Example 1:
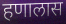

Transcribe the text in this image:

हणालास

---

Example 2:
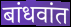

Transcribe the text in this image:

बांधवांत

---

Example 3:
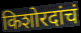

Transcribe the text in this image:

किशोरदांचं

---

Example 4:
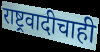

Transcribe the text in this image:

राष्ट्रवादीचाही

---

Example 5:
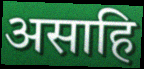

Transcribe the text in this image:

असाहि